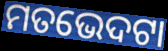
ମତଭେଦଟା